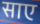
साए